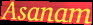
Asanam